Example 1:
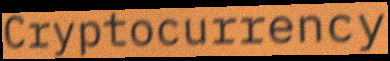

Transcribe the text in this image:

Cryptocurrency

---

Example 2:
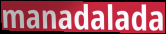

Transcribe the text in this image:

manadalada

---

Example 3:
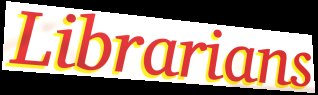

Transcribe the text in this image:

Librarians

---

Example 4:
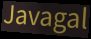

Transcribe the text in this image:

Javagal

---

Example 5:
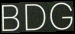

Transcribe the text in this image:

BDG